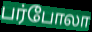
பர்போலா